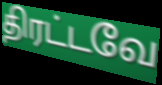
திரட்டவே